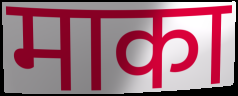
माका